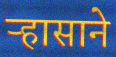
ऱ्हासाने